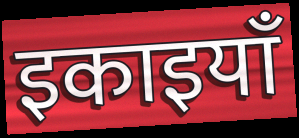
इकाइयाँ